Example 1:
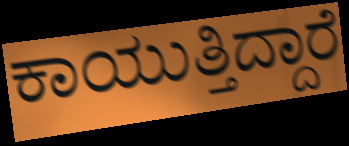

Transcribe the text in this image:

ಕಾಯುತ್ತಿದ್ದಾರೆ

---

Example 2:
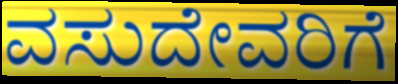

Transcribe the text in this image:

ವಸುದೇವರಿಗೆ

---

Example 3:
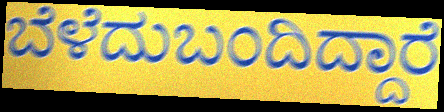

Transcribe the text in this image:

ಬೆಳೆದುಬಂದಿದ್ದಾರೆ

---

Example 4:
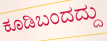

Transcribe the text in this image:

ಕೂಡಿಬಂದದ್ದು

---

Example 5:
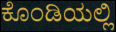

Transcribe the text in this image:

ಕೊಂಡಿಯಲ್ಲಿ